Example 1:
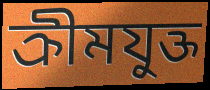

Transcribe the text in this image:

ক্ৰীমযুক্ত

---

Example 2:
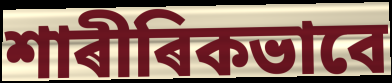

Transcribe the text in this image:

শাৰীৰিকভাবে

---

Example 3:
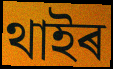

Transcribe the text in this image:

থাইৰ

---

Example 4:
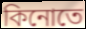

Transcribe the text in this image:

কিনোতে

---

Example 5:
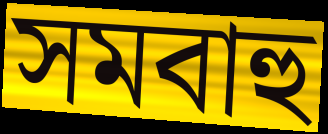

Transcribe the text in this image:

সমবাহু